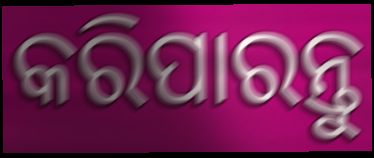
କରିପାରନ୍ତୁ